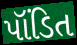
પૉંડિત